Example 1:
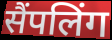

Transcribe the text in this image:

सैंपलिंग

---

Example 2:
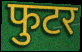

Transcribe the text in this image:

फुटर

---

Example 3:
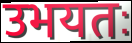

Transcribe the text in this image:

उभयतः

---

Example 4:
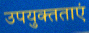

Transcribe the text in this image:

उपयुक्तताएं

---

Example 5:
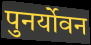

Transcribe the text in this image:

पुनर्योवन